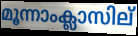
മൂന്നാംക്ലാസില്